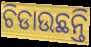
ଚିଡାଉଛନ୍ତି